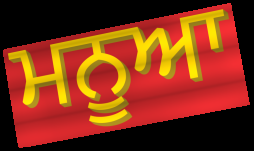
ਮਨੂਆ